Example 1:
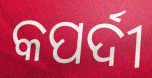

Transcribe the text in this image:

କପର୍ଦୀ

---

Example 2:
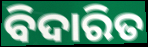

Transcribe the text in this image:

ବିଦାରିତ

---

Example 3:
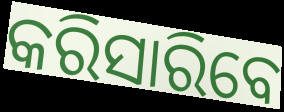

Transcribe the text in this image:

କରିସାରିବେ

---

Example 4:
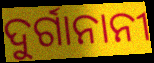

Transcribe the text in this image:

ଦୁର୍ଗାନାନୀ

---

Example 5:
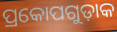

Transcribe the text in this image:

ପ୍ରକୋପଗୁଡ଼ାକ